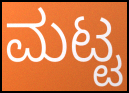
ಮಟ್ಟ